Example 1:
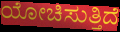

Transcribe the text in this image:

ಯೋಚಿಸುತ್ತಿದೆ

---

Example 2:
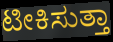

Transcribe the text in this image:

ಟೀಕಿಸುತ್ತಾ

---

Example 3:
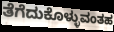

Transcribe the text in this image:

ತೆಗೆದುಕೊಳ್ಳುವಂತಹ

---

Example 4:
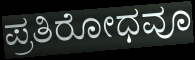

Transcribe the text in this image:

ಪ್ರತಿರೋಧವೂ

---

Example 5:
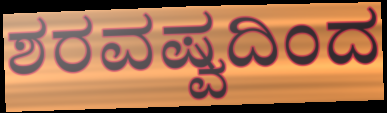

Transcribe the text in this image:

ಶರವಷ್ವದಿಂದ